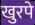
खुरपे